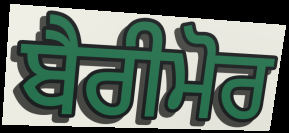
ਬੈਰੀਮੋਰ